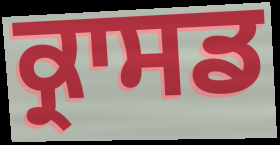
ਕ੍ਰਾਸਡ